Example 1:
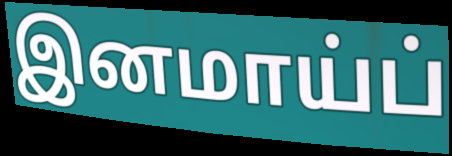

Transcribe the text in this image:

இனமாய்ப்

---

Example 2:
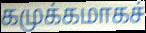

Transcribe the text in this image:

கமுக்கமாகச்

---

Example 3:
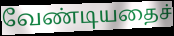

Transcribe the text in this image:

வேண்டியதைச்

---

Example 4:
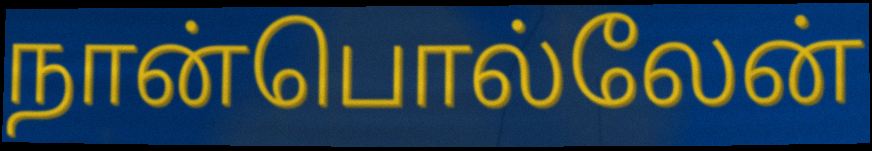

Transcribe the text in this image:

நான்பொல்லேன்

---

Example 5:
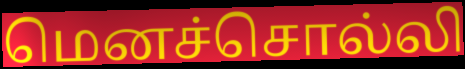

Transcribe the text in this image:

மெனச்சொல்லி